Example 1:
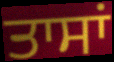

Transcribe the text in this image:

ਤਾਸਾਂ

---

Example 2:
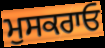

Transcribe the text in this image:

ਮੁਸਕਰਾਓ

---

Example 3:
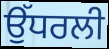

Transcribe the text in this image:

ਉੱਧਰਲੀ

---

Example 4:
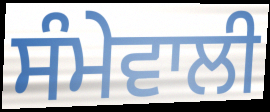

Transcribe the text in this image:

ਸੰਮੇਵਾਲੀ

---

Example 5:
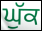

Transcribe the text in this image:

ਘੁੱਕ